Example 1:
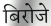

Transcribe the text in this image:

बिरोजे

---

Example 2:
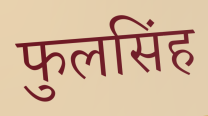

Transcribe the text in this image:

फुलसिंह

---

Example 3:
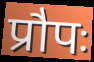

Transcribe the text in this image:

प्रौपः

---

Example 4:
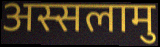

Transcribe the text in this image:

अस्सलामु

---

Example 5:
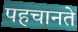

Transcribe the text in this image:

पहचानते